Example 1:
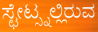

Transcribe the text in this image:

ಸ್ಟೇಟ್ಸ್ನಲ್ಲಿರುವ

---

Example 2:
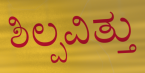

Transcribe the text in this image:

ಶಿಲ್ಪವಿತ್ತು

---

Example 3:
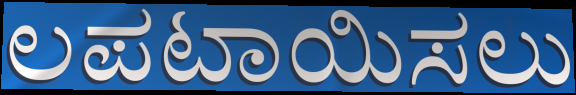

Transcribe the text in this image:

ಲಪಟಾಯಿಸಲು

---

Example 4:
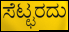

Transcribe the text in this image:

ಸೆಟ್ಟರದು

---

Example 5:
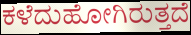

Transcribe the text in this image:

ಕಳೆದುಹೋಗಿರುತ್ತದೆ